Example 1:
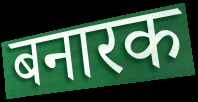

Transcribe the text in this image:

बनारक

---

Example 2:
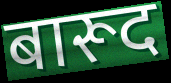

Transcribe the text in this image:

बारूद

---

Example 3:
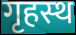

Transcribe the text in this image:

गृहस्‍थ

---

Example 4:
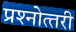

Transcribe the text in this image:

प्रश्‍नोत्‍तरी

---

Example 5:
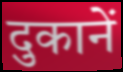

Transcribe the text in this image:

दुकानें